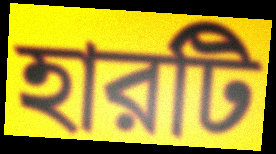
হারটি